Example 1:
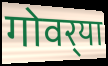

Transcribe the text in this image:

गोवर्‍या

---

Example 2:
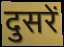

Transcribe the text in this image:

दुसरें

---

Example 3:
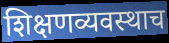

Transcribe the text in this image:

शिक्षणव्यवस्थाच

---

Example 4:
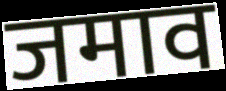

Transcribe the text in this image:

जमाव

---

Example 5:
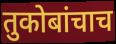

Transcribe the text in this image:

तुकोबांचाच